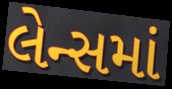
લેન્સમાં